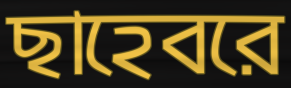
ছাহেবরে